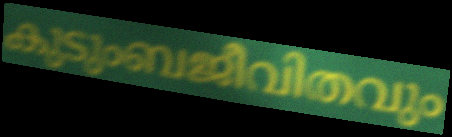
കുടുംബജീവിതവും